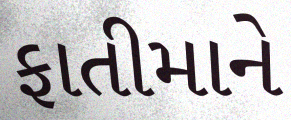
ફાતીમાને